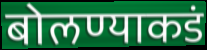
बोलण्याकडं